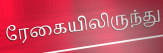
ரேகையிலிருந்து